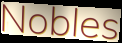
Nobles